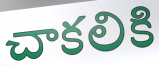
చాకలికి